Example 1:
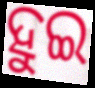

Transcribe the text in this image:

ହୁଇ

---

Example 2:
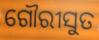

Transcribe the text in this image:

ଗୌରୀସୁତ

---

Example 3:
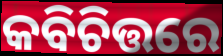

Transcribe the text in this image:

କବିଚିତ୍ତରେ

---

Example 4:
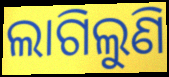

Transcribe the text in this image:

ଲାଗିଲୁଣି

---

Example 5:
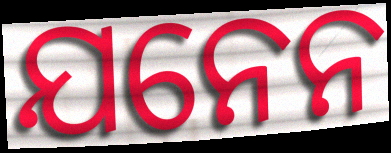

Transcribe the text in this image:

ଯନେନ